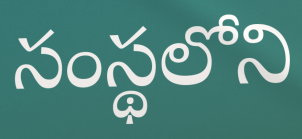
సంస్థలోని